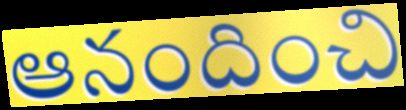
ఆనందించి